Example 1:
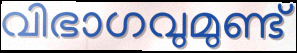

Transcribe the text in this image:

വിഭാഗവുമുണ്ട്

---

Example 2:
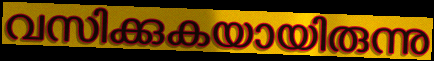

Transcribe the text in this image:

വസിക്കുകയായിരുന്നു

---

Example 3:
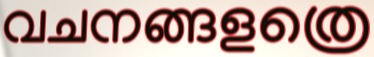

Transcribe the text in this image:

വചനങ്ങളത്രെ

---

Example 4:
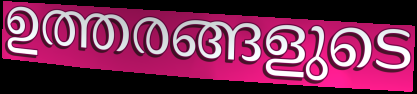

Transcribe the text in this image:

ഉത്തരങ്ങളുടെ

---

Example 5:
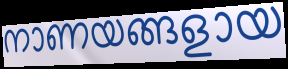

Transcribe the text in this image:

നാണയങ്ങളായ